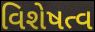
વિશેષત્વ